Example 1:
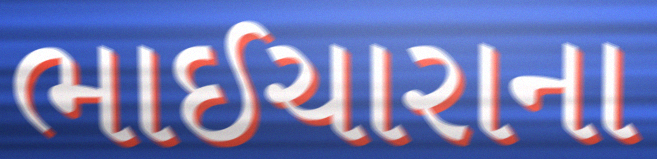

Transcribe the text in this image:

ભાઈચારાના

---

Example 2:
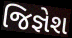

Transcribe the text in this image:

જિજ્ઞેશ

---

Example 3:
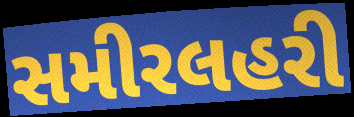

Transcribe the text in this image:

સમીરલહરી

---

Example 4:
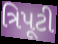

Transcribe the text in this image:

ત્રિપૂટી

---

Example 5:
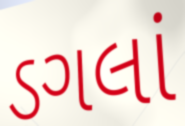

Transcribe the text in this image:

ડગલાં